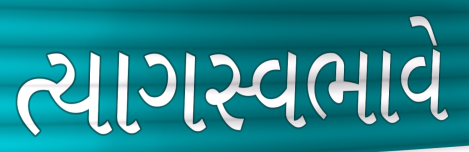
ત્યાગસ્વભાવે